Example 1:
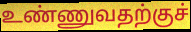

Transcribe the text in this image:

உண்ணுவதற்குச்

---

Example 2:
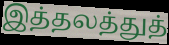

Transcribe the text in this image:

இத்தலத்துத்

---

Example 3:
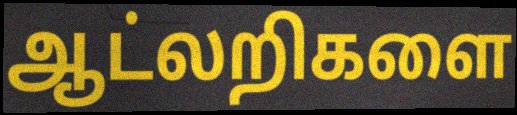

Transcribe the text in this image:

ஆட்லறிகளை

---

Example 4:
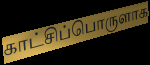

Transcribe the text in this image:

காட்சிப்பொருளாக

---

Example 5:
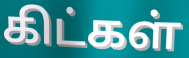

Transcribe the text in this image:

கிட்கள்